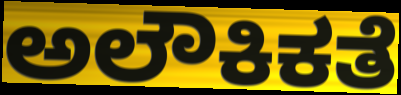
ಅಲೌಕಿಕತೆ